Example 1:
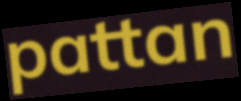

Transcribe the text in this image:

pattan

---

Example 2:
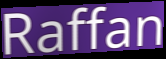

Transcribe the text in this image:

Raffan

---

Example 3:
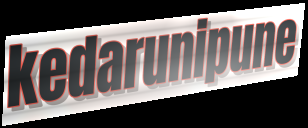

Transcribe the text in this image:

kedarunipune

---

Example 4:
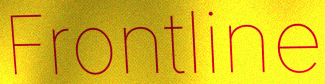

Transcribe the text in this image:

Frontline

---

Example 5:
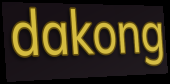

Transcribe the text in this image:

dakong